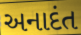
અનાદંત